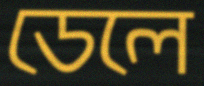
ডেলে